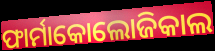
ଫାର୍ମାକୋଲୋଜିକାଲ